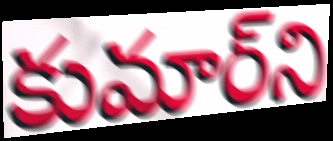
కుమార్‌ని